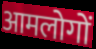
आमलोगों